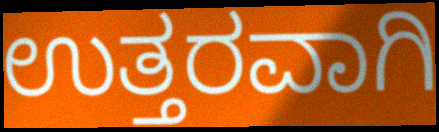
ಉತ್ತರವಾಗಿ